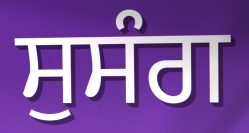
ਸੁਸੰਗ